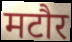
मटौर